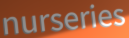
nurseries